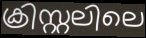
ക്രിസ്റ്റലിലെ